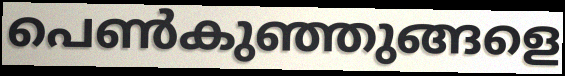
പെൺകുഞ്ഞുങ്ങളെ